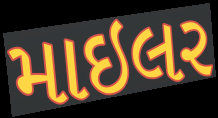
માઇલર